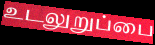
உடலுறுப்பை